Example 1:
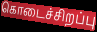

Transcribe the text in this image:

கொடைச்சிறப்பு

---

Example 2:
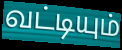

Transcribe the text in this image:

வட்டியும்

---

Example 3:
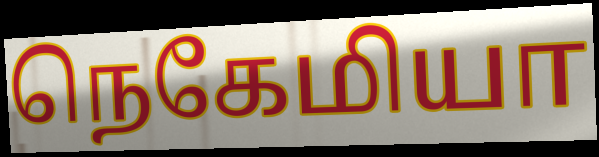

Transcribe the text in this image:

நெகேமியா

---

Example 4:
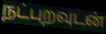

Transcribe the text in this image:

நட்புறவுடன்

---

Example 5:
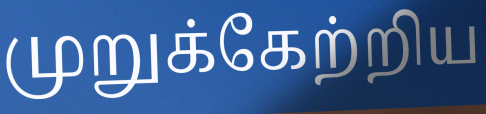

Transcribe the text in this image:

முறுக்கேற்றிய